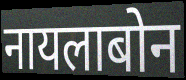
नायलाबोन